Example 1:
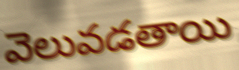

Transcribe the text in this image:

వెలువడతాయి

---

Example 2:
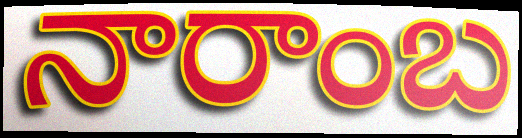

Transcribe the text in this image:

నారాంబ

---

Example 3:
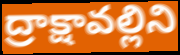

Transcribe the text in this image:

ద్రాక్షావల్లిని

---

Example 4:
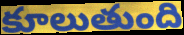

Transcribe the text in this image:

కూలుతుంది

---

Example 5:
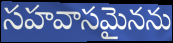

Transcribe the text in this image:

సహవాసమైనను